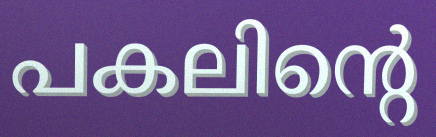
പകലിന്റെ